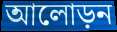
আলোড়ন